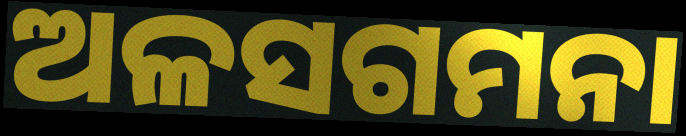
ଅଳସଗମନା